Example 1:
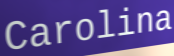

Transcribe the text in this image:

Carolina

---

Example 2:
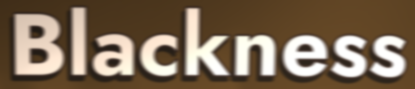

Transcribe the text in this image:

Blackness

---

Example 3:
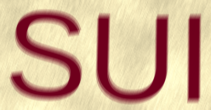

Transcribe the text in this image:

SUI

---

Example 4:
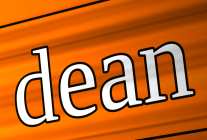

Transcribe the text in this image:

dean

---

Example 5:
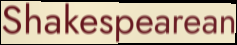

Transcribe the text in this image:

Shakespearean